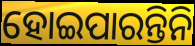
ହୋଇପାରନ୍ତିନି